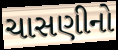
ચાસણીનો